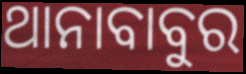
ଥାନାବାବୁର